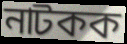
নাটকক